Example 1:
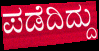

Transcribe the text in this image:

ಪಡೆದಿದ್ದು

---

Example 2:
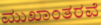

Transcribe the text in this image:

ಮುಖಾಂತರವೆ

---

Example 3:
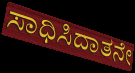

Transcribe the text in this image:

ಸಾಧಿಸಿದಾತನೇ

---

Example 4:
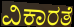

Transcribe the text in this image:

ವಿಕಾರತೆ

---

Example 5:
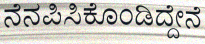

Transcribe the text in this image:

ನೆನಪಿಸಿಕೊಂಡಿದ್ದೇನೆ